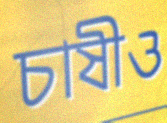
চাষীও